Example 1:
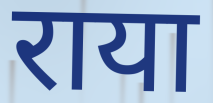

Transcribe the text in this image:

राया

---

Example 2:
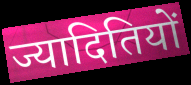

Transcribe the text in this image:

ज्यादितियों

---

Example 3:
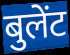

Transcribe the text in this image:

बुलेंट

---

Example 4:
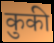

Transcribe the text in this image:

कुकी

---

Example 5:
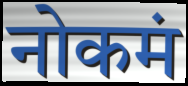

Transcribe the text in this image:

नोकमं